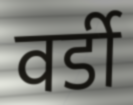
वर्डी